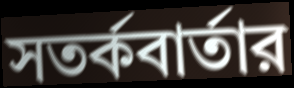
সতর্কবার্তার